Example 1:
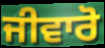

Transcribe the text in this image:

ਜੀਵਾਰੋ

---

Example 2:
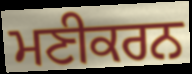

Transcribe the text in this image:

ਮਣੀਕਰਨ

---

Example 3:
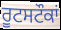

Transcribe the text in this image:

ਰੂਟਸਟੌਕਾਂ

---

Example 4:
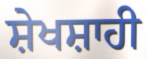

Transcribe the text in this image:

ਸ਼ੇਖਸ਼ਾਹੀ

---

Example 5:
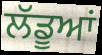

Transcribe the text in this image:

ਲੱਡੂਆਂ